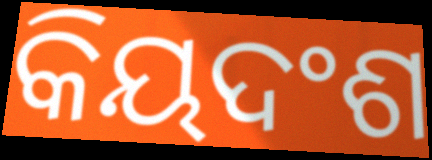
କିୟଦଂଶ